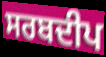
ਸਰਬਦੀਪ